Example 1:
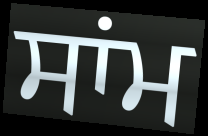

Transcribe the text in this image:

ਸਾਂਮ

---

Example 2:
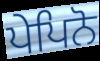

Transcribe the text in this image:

ਪੇਪਿਨੋ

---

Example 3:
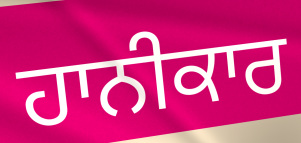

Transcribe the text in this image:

ਹਾਨੀਕਾਰ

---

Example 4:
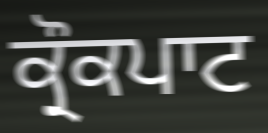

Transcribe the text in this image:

ਕ੍ਰੌਕਪਾਟ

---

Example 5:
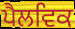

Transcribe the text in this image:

ਪੈਲਵਿਕ